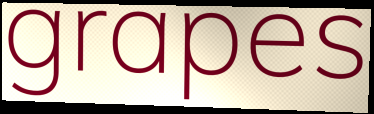
grapes